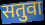
सतुवा